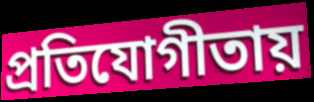
প্রতিযোগীতায়